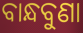
ବାନ୍ଧବୁଣା